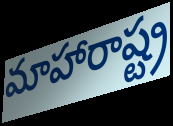
మాహారాష్ట్ర